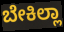
ಬೇಕಿಲ್ಲಾ